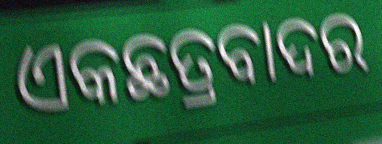
ଏକଛତ୍ରବାଦର